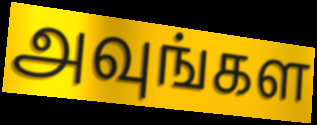
அவுங்கள